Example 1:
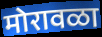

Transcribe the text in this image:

मोरावळा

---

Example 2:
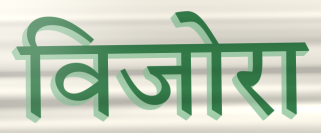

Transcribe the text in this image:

विजोरा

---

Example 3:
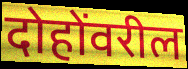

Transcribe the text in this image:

दोहोंवरील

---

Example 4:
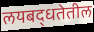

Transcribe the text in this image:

लयबद्धतेतील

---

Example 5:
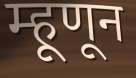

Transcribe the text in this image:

म्हूणून